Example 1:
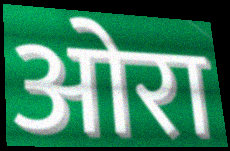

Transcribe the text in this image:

ओरा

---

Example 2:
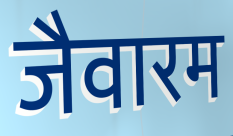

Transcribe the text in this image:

जैवारम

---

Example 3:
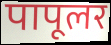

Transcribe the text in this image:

पापूलर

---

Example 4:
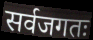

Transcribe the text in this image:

सर्वजगतः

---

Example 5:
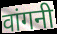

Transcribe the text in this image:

वांगनी